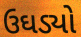
ઉઘડ્યો